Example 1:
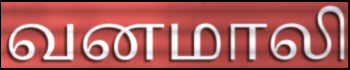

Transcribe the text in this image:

வனமாலி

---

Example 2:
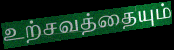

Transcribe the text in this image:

உற்சவத்தையும்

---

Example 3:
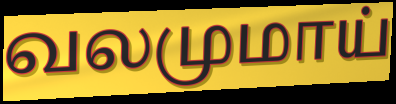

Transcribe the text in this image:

வலமுமாய்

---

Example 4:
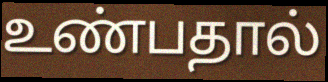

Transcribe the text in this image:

உண்பதால்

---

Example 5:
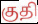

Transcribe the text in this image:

குதி